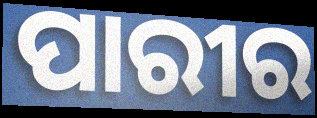
ପାରୀର